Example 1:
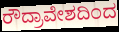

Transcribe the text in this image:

ರೌದ್ರಾವೇಶದಿಂದ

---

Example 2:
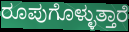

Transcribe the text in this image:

ರೂಪುಗೊಳ್ಳುತ್ತಾರೆ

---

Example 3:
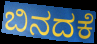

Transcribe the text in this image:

ಬಿನದಕೆ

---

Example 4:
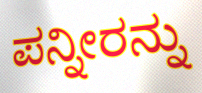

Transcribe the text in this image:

ಪನ್ನೀರನ್ನು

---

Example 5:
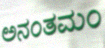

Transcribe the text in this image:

ಅನಂತಮಂ